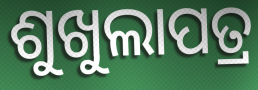
ଶୁଖୁଲାପତ୍ର